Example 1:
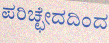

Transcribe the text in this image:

ಪರಿಚ್ಛೇದದಿಂದ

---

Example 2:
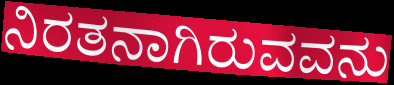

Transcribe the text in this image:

ನಿರತನಾಗಿರುವವನು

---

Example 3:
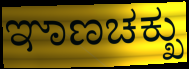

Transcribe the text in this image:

ಞಾಣಚಕ್ಖು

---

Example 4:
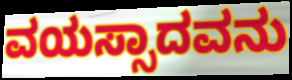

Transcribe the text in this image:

ವಯಸ್ಸಾದವನು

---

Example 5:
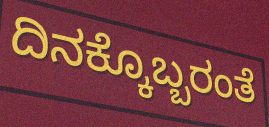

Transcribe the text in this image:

ದಿನಕ್ಕೊಬ್ಬರಂತೆ